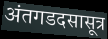
अंतगडदसासूत्र